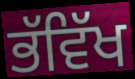
ਭੱਵਿੱਖ